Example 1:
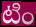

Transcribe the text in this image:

టిం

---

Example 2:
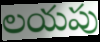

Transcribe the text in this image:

లయపు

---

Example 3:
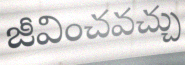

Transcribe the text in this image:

జీవించవచ్చు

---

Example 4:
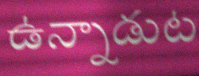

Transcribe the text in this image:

ఉన్నాడుట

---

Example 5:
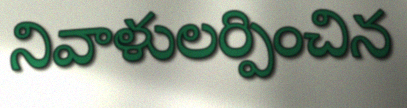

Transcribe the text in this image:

నివాళులర్పించిన